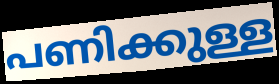
പണിക്കുള്ള